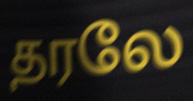
தரலே